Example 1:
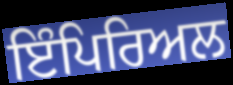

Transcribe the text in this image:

ਇੰਪਿਰਿਅਲ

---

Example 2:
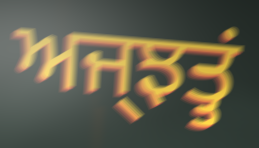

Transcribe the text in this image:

ਅਜ੍ਝਤ੍ਤਂ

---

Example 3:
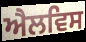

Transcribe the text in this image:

ਐਲਵਿਸ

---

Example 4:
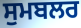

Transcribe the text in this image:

ਸੁਮਬਲਰ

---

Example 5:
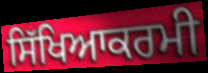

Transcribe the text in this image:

ਸਿੱਖਿਆਕਰਮੀ